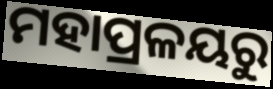
ମହାପ୍ରଳୟରୁ